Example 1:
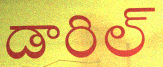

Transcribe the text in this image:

డారిల్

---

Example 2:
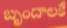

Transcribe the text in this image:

బృందాలకే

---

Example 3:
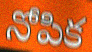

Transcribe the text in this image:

నోపిక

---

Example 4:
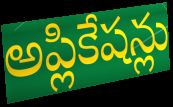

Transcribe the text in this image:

అప్లికేషన్లు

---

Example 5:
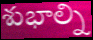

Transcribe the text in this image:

శుభాల్ని